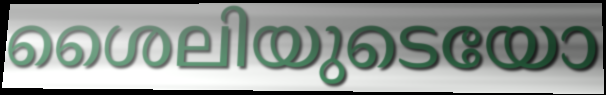
ശൈലിയുടെയോ